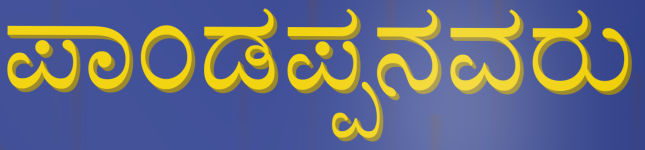
ಪಾಂಡಪ್ಪನವರು